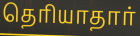
தெரியாதார்